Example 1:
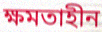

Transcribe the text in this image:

ক্ষমতাহীন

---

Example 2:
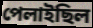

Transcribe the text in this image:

পেলাইছিল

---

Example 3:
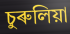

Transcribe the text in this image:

চুৰুলিয়া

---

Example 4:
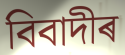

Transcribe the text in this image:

বিবাদীৰ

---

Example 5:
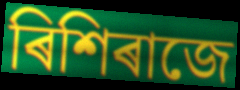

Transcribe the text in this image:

ৰিশিৰাজে